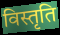
विस्तृति